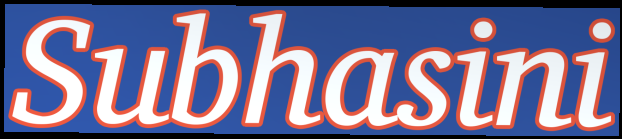
Subhasini